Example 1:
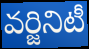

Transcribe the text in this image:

వర్జినిటీ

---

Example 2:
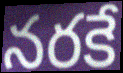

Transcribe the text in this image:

నరకే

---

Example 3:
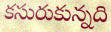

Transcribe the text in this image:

కసురుకున్నది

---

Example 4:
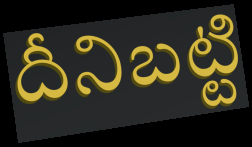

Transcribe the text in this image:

దీనిబట్టి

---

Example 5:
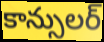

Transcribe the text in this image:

కాన్సులర్